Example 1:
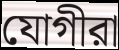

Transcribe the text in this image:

যোগীরা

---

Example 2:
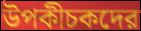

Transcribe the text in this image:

উপকীচকদের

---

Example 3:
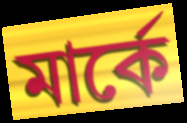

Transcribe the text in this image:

মার্কে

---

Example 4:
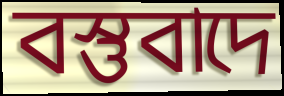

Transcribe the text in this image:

বস্তুবাদে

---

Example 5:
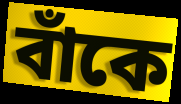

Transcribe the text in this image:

বাঁকে